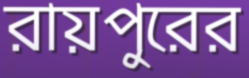
রায়পুরের